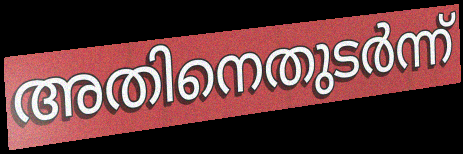
അതിനെതുടർന്ന്